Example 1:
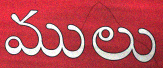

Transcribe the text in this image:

ములు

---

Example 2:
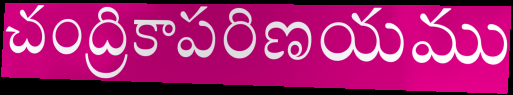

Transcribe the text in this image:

చంద్రికాపరిణయము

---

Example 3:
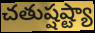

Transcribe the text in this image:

చతుష్షష్ట్యా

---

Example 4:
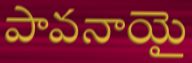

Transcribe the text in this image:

పావనాయై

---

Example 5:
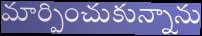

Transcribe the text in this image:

మార్పించుకున్నాను